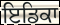
ਇਡਿਕਾ